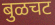
बुळचट